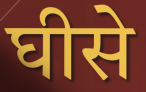
घीसे